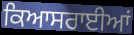
ਕਿਆਸਰਾਈਆਂ